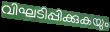
വിഘടിപ്പിക്കുകയും